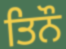
ਤਿਨੌ